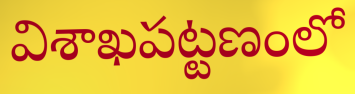
విశాఖపట్టణంలో